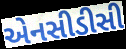
એનસીડીસી